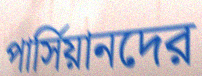
পার্সিয়ানদের